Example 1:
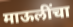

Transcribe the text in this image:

माऊलींचा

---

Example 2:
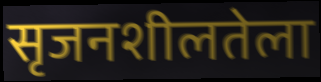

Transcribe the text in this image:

सृजनशीलतेला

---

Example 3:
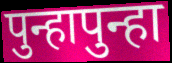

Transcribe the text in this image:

पुन्हापुन्हा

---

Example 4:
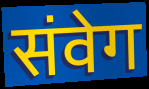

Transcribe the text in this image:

संवेग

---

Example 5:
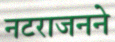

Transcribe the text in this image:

नटराजनने